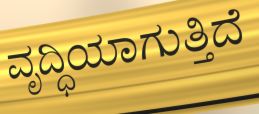
ವೃದ್ಧಿಯಾಗುತ್ತಿದೆ